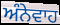
ਅੰਨੇਵਾਹ